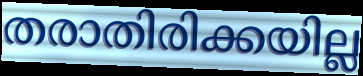
തരാതിരിക്കയില്ല